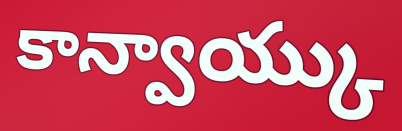
కాన్వాయ్కు